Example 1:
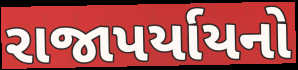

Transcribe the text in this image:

રાજાપર્યાયનો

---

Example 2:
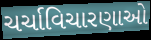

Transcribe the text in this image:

ચર્ચાવિચારણાઓ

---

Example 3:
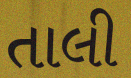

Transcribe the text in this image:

તાલી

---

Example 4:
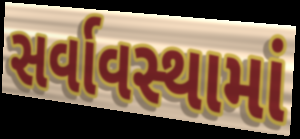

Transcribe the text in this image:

સર્વાવસ્થામાં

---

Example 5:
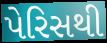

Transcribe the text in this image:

પેરિસથી